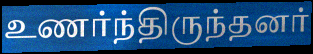
உணர்ந்திருந்தனர்